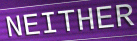
NEITHER